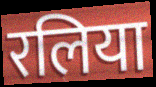
रलिया